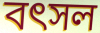
বৎসল